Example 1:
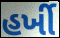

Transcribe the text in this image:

હર્ખી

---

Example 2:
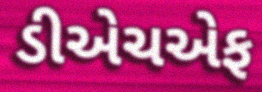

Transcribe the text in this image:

ડીએચએફ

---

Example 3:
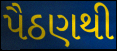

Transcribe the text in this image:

પૈઠણથી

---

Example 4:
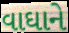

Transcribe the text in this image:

વાઘાને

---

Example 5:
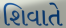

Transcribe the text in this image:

શિવાતે